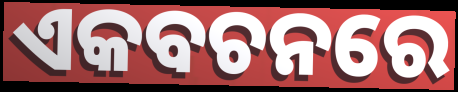
ଏକବଚନରେ